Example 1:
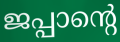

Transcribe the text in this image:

ജപ്പാന്റെ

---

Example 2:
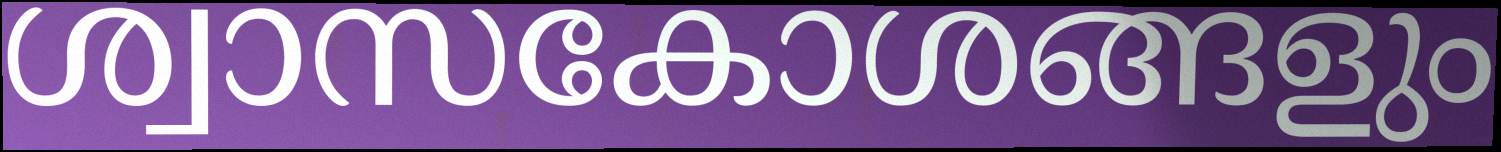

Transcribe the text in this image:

ശ്വാസകോശങ്ങളും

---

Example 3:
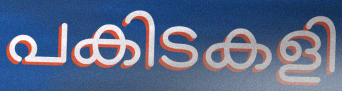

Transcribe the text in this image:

പകിടകളി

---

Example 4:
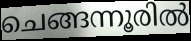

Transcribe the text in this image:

ചെങ്ങന്നൂരിൽ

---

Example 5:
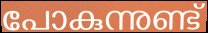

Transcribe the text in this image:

പോകുന്നുണ്ട്